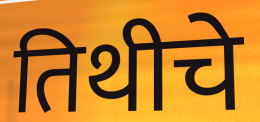
तिथीचे